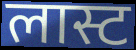
लास्ट